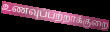
உணவுப்பற்றாக்குறை